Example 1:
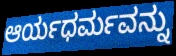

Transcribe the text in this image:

ಆರ್ಯಧರ್ಮವನ್ನು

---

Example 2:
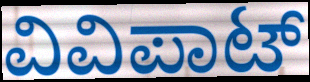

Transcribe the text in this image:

ವಿವಿಪಾಟ್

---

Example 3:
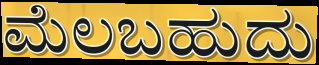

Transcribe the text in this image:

ಮೆಲಬಹುದು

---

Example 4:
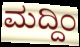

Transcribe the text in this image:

ಮದ್ದಿಂ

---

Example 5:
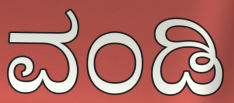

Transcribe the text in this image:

ವಂಡಿ